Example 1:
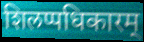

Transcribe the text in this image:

शिलप्पधिकारम्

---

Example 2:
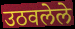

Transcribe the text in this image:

उठवलेले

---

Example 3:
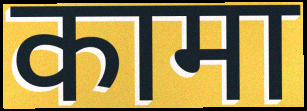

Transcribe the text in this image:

कामा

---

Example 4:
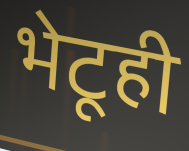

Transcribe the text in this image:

भेटूही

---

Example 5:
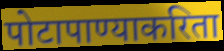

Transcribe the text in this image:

पोटापाण्याकरिता